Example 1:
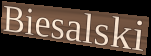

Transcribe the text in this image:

Biesalski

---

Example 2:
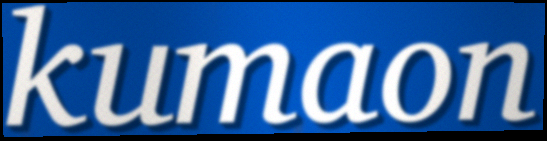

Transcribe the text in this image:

kumaon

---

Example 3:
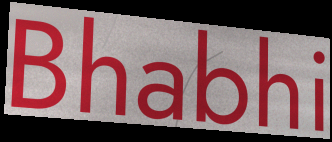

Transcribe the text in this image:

Bhabhi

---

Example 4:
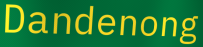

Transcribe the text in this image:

Dandenong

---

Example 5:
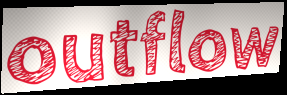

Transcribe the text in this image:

outflow